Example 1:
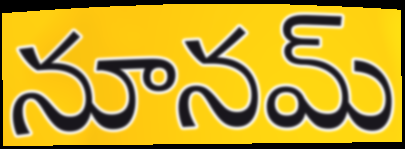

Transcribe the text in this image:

నూనమ్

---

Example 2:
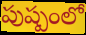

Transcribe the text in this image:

పుష్పంలో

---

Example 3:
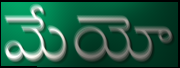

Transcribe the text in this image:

మేయో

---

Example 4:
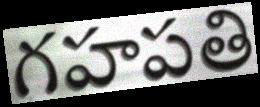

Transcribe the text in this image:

గహపతి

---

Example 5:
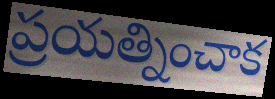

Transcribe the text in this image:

ప్రయత్నించాక